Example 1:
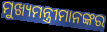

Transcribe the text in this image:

ମୁଖ୍ୟମନ୍ତ୍ରୀମାନଙ୍କର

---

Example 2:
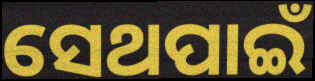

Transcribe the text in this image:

ସେଥପାଇଁ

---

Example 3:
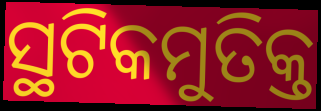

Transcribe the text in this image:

ସ୍ଥଟିକମୁତିକ୍ତ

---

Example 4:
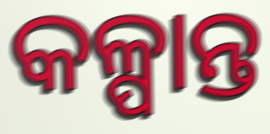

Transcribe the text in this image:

କଳ୍ପାନ୍ତ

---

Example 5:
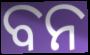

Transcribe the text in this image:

ବନ